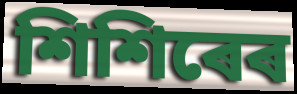
শিশিৰেৰ